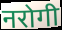
नरोगी